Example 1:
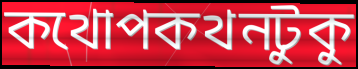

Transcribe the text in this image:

কথোপকথনটুকু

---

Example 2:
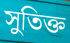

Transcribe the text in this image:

সুতিক্ত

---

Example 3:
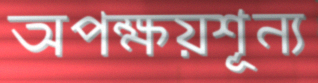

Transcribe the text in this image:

অপক্ষয়শূন্য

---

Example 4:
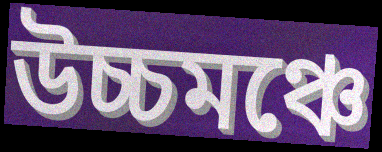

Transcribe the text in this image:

উচ্চমঞ্চে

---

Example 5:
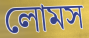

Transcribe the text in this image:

লোমস